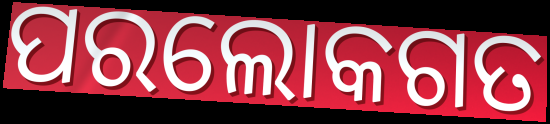
ପରଲୋକଗତ